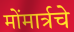
मोंमार्त्रचे